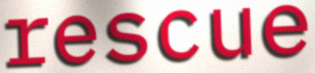
rescue